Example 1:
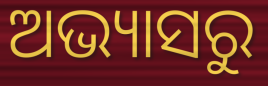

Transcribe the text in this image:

ଅଭ୍ୟାସରୁ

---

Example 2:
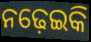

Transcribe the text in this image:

ନଢ଼େଇକି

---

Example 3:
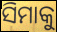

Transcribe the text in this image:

ସିମାକୁ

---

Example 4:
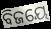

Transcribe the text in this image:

ବିଜୟେ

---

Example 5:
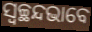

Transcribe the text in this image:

ସ୍ୱଚ୍ଛନ୍ଦଭାବେ